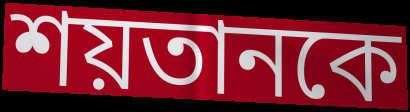
শয়তানকে